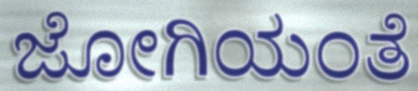
ಜೋಗಿಯಂತೆ